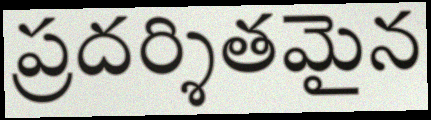
ప్రదర్శితమైన